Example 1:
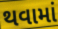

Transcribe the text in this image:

થવામાં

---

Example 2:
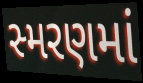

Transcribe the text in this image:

સ્મરણમાં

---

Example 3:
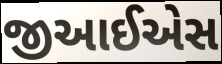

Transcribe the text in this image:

જીઆઈએસ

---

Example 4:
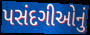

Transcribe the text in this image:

પસંદગીઓનું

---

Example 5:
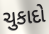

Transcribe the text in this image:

ચુકાદો